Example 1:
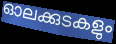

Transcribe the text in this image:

ഓലക്കുടകളും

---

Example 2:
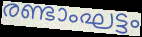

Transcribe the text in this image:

രണ്ടാംഘട്ടം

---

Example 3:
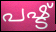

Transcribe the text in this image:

പഷ്ട്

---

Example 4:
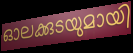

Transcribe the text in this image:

ഓലക്കുടയുമായി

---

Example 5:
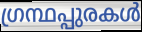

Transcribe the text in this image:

ഗ്രന്ഥപ്പുരകൾ